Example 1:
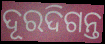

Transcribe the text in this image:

ଦୂରଦିଗନ୍ତ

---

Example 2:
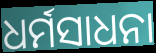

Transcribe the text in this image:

ଧର୍ମସାଧନା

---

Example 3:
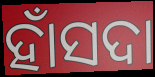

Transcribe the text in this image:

ହାଁସଦା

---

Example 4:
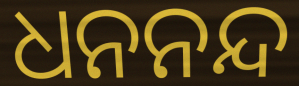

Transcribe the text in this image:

ଧନନନ୍ଦ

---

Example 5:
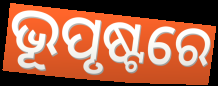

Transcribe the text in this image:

ଭୂପୃଷ୍ଟରେ